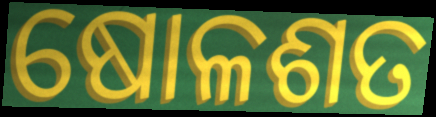
ଷୋଳଶତ